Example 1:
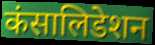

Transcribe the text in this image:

कंसालिडेशन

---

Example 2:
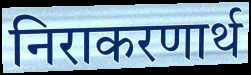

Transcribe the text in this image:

निराकरणार्थ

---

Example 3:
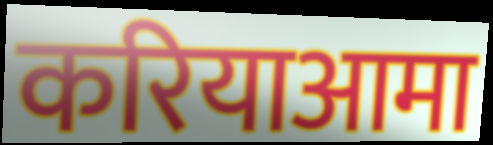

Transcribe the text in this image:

करियाआमा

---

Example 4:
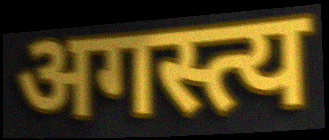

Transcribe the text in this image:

अगस्त्य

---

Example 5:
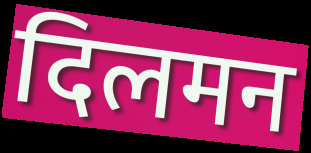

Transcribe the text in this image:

दिलमन